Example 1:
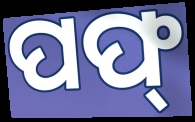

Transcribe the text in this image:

ପଫ୍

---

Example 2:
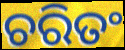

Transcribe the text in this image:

ଚରିତଂ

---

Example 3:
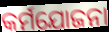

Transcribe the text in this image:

କର୍ମଯୋଜନା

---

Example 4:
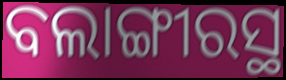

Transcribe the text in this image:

ବଲାଙ୍ଗୀରସ୍ଥ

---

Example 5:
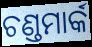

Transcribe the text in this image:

ଚଣ୍ଡମାର୍କ